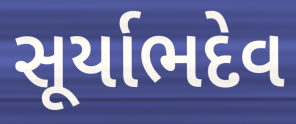
સૂર્યાભદેવ